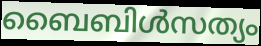
ബൈബിൾസത്യം